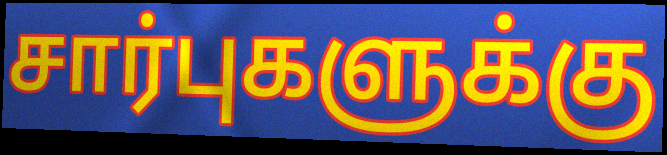
சார்புகளுக்கு